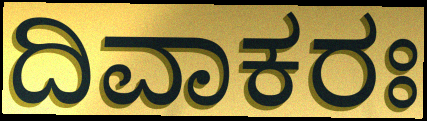
ದಿವಾಕರಃ